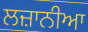
ਲਜ਼ਾਨੀਆ